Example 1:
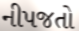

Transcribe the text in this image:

નીપજતો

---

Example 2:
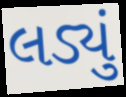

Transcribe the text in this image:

લડ્યું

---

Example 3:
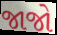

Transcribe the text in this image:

જાજો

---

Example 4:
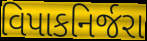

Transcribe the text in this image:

વિપાકનિર્જરા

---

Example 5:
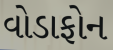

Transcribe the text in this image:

વોડાફોન